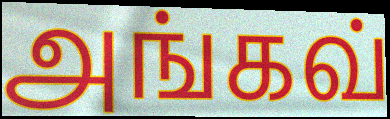
அங்கவ்